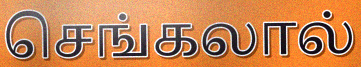
செங்கலால்